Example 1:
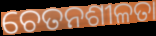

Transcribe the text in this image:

ଚେତନଶୀଳତା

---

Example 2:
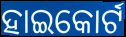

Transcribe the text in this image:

ହାଇକୋର୍ଟ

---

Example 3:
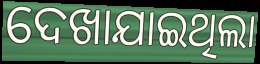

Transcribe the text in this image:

ଦେଖାଯାଇଥିଲା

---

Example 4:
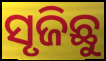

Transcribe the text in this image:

ସୃଜିଛୁ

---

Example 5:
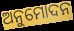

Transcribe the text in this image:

ଅନୁମୋଦନ